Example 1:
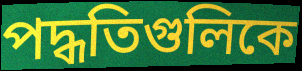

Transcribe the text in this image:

পদ্ধতিগুলিকে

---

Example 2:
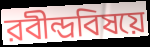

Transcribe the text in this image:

রবীন্দ্রবিষয়ে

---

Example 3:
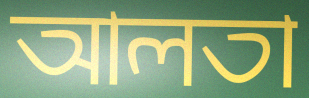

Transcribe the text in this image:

আলতা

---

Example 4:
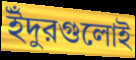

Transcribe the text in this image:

ইঁদুরগুলোই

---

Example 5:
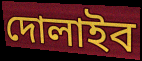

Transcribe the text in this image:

দোলাইব